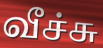
வீச்சு